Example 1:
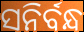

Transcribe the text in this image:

ସନିର୍ବନ୍ଧ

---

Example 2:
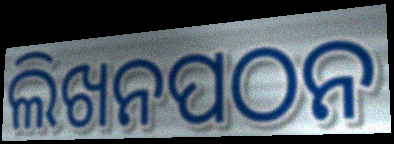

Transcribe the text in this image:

ଲିଖନପଠନ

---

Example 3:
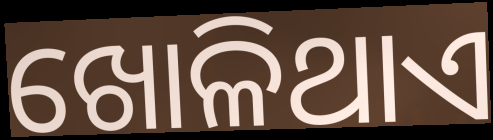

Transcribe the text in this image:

ଖୋଳିଥାଏ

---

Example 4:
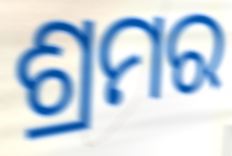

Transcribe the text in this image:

ଶ୍ରମର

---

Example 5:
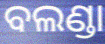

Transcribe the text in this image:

ବଲଣ୍ଡା